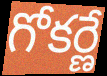
గోకర్ణే